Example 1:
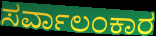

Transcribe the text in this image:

ಸರ್ವಾಲಂಕಾರ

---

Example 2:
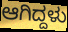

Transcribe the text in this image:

ಆಗಿದ್ದಳು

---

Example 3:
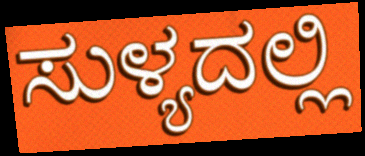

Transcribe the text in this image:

ಸುಳ್ಯದಲ್ಲಿ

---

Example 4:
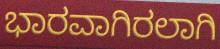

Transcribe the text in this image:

ಭಾರವಾಗಿರಲಾಗಿ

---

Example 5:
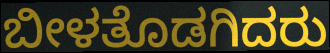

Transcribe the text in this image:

ಬೀಳತೊಡಗಿದರು